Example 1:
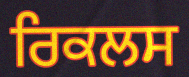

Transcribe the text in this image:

ਰਿਕਲਸ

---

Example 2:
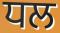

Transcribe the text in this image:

ਧਲ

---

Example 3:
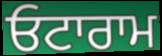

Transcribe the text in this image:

ਓਟਾਰਾਮ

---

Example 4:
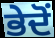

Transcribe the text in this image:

ਭੇਦੋਂ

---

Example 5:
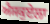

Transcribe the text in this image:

ਐਸਕੁਏਲਾ